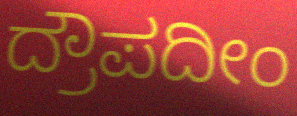
ದ್ರೌಪದೀಂ